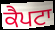
ਕੈਪਟਾ